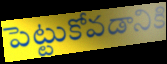
పెట్టుకోవడానికి